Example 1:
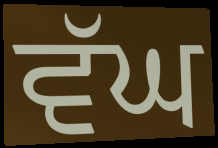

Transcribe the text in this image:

ਵੱਘ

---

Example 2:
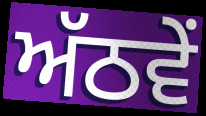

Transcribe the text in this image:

ਅੱਠਵੇਂ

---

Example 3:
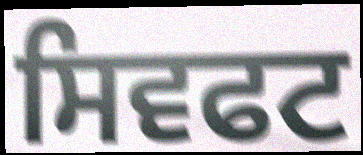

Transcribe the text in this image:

ਸਿਵਫਟ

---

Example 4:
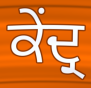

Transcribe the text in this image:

ਕੇਂਦ੍ਰ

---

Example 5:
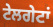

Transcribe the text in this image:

ਟੇਲਗੇਟਾਂ